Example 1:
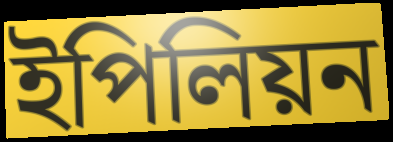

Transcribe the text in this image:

ইপিলিয়ন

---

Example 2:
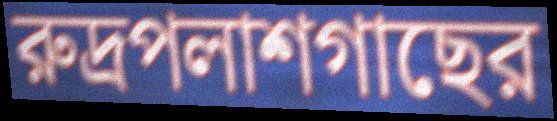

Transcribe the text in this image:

রুদ্রপলাশগাছের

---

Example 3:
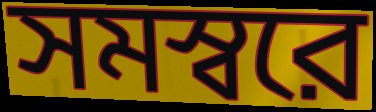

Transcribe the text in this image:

সমস্বরে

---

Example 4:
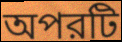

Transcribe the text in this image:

অপরটি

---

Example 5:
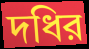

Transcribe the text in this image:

দধির